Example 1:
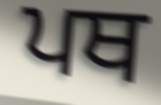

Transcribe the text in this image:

ਪਥ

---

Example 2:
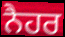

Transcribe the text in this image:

ਨੈਹਰ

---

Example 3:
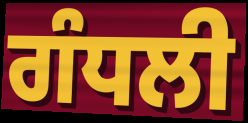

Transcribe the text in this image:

ਗੰਧਲੀ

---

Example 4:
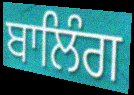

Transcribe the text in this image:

ਬਾਲਿੰਗ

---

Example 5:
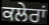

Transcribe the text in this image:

ਕਲੇਰਾਂ